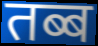
तब्ब